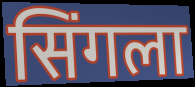
सिंगला